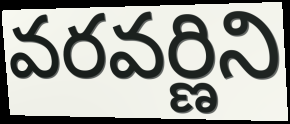
వరవర్ణిని